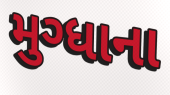
મુગ્ધાના